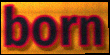
born